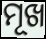
ମୂଖ